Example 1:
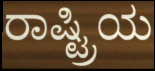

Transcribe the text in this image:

ರಾಷ್ಟ್ರಿಯ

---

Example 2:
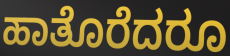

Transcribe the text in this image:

ಹಾತೊರೆದರೂ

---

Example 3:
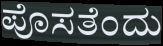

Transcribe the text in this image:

ಪೊಸತೆಂದು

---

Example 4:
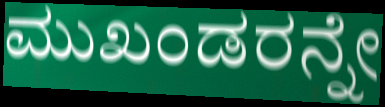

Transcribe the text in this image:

ಮುಖಂಡರನ್ನೇ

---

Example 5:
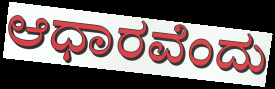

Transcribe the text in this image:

ಆಧಾರವೆಂದು